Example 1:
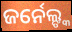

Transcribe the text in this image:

ଜର୍ନେଲ୍ଙ୍କ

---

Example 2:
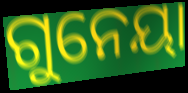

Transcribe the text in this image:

ଗୁନେୟା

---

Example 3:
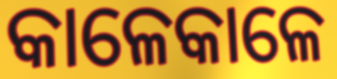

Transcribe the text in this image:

କାଳେକାଳେ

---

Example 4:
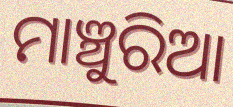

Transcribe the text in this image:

ମାଞ୍ଚୁରିଆ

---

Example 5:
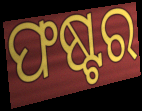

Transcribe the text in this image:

ଫଷ୍ଟର